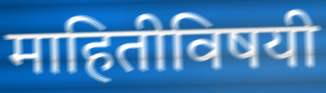
माहितीविषयी